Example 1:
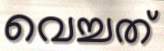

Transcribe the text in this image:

വെച്ചത്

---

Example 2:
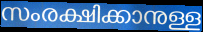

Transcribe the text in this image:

സംരക്ഷിക്കാനുള്ള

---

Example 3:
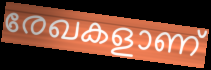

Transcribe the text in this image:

രേഖകളാണ്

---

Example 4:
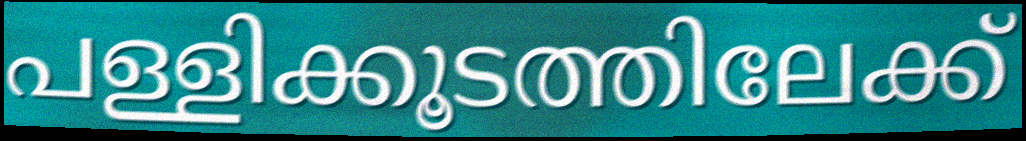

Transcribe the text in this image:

പള്ളിക്കൂടത്തിലേക്ക്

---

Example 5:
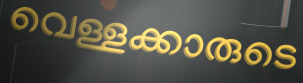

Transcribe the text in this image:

വെള്ളക്കാരുടെ